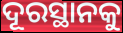
ଦୂରସ୍ଥାନକୁ